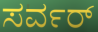
ಸರ್ವರ್